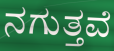
ನಗುತ್ತವೆ